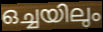
ഒച്ചയിലും